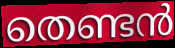
തെണ്ടൻ